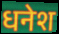
धनेश